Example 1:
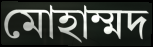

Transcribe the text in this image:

মোহাম্মদ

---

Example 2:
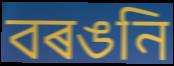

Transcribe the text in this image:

বৰঙনি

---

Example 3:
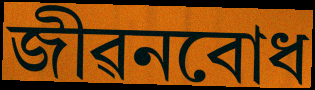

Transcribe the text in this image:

জীৱনবোধ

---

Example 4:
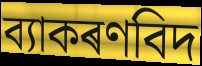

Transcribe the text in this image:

ব্যাকৰণবিদ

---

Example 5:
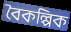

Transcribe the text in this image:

বৈকল্পিক